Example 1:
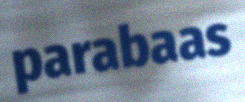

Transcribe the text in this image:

parabaas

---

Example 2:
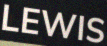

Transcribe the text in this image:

LEWIS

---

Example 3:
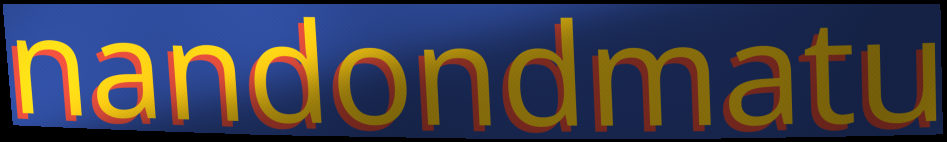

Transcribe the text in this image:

nandondmatu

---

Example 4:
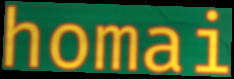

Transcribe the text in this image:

homai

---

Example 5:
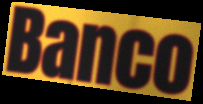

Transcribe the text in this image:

Banco